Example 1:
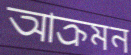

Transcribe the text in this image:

আক্ৰমন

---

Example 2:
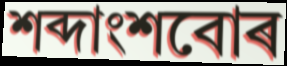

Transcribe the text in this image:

শব্দাংশবোৰ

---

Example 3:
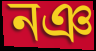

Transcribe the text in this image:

নঞ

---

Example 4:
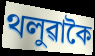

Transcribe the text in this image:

থলুৱাকৈ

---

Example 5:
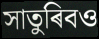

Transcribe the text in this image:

সাতুৰিবও